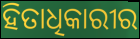
ହିତାଧିକାରୀର